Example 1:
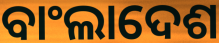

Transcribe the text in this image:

ବାଂଲାଦେଶ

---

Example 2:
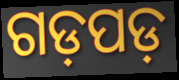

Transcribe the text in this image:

ଗଡ଼ପଡ଼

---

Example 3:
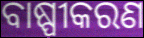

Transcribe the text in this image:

ବାଷ୍ପୀକରଣ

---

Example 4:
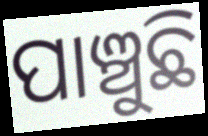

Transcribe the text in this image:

ପାଞ୍ଚୁଛି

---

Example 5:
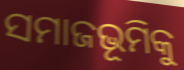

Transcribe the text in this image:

ସମାଜଭୂମିକୁ